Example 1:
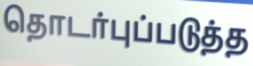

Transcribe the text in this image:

தொடர்புப்படுத்த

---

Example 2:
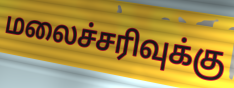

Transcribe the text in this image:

மலைச்சரிவுக்கு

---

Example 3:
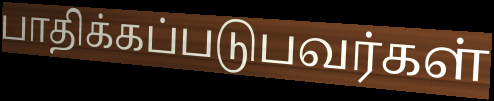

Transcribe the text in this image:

பாதிக்கப்படுபவர்கள்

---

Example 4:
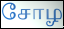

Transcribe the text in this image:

சோழ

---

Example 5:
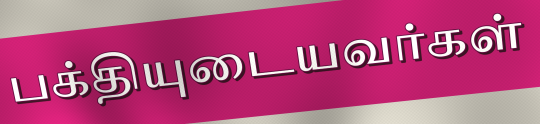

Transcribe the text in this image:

பக்தியுடையவர்கள்